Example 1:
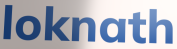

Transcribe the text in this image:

loknath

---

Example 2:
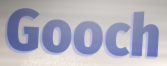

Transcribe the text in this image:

Gooch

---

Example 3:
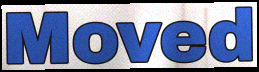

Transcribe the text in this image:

Moved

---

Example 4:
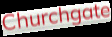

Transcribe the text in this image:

Churchgate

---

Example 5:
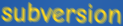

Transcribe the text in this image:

subversion